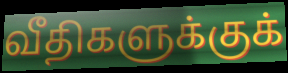
வீதிகளுக்குக்